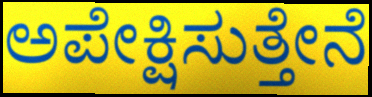
ಅಪೇಕ್ಷಿಸುತ್ತೇನೆ